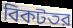
বিকটতর